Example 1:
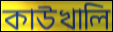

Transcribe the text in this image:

কাউখালি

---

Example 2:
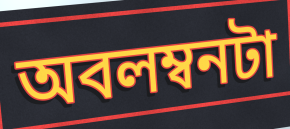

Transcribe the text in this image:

অবলম্বনটা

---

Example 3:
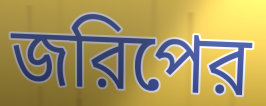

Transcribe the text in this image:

জরিপের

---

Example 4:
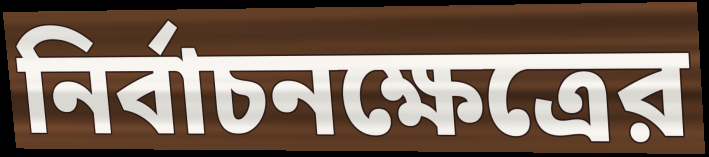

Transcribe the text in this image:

নির্বাচনক্ষেত্রের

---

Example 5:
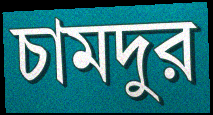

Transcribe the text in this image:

চামদুর